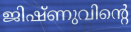
ജിഷ്ണുവിന്റെ